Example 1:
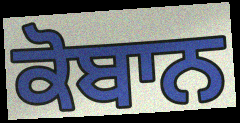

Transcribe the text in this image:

ਕੋਬਾਨ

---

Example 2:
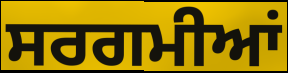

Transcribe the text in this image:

ਸਰਗਮੀਆਂ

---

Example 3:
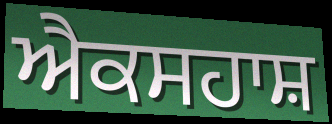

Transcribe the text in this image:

ਐਕਸਹਾਸ਼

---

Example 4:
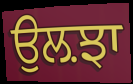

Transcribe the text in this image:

ਉਲ਼ਝਾ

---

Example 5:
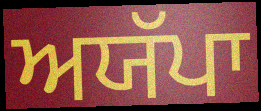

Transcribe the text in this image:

ਅਯੱਪਾ